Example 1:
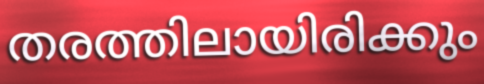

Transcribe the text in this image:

തരത്തിലായിരിക്കും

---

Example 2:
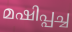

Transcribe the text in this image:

മഷിപ്പച്ച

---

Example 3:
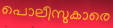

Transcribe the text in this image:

പൊലീസുകാരെ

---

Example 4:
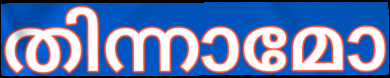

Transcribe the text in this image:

തിന്നാമോ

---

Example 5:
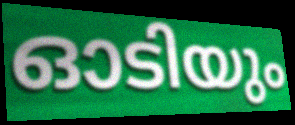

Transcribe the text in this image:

ഓടിയും